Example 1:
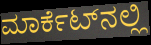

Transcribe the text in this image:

ಮಾರ್ಕೆಟ್‍ನಲ್ಲಿ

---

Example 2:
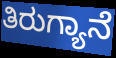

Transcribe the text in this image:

ತಿರುಗ್ಯಾನೆ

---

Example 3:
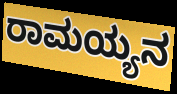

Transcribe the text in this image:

ರಾಮಯ್ಯನ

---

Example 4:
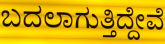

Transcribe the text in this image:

ಬದಲಾಗುತ್ತಿದ್ದೇವೆ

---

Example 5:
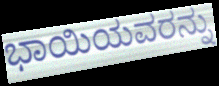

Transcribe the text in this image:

ಭಾಯಿಯವರನ್ನು